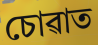
চোৱাত